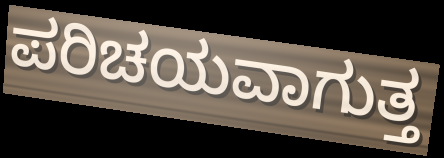
ಪರಿಚಯವಾಗುತ್ತ